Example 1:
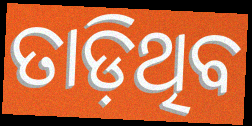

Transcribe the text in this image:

ତାଡ଼ିଥିବ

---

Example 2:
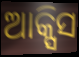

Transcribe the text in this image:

ଆକ୍ସିସ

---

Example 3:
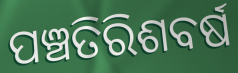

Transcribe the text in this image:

ପଞ୍ଚତିରିଶବର୍ଷ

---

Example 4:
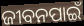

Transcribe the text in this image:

ଜୀବନପାଇଁ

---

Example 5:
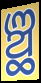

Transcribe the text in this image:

ଞ୍ଛ